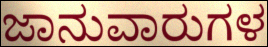
ಜಾನುವಾರುಗಳ